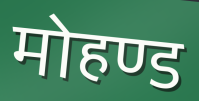
मोहण्ड